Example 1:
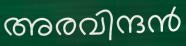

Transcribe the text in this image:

അരവിന്ദൻ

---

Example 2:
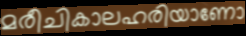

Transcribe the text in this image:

മരീചികാലഹരിയാണോ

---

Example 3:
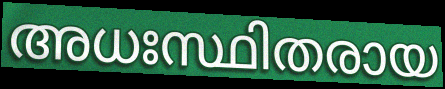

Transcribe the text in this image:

അധഃസ്ഥിതരായ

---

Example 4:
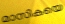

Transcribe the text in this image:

മാസികയെ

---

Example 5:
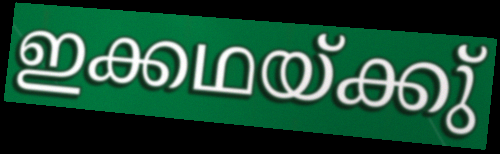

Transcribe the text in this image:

ഇക്കഥയ്ക്കു്